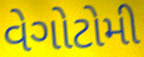
વેગોટોમી